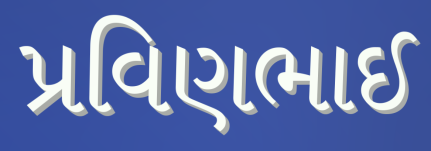
પ્રવિણભાઈ